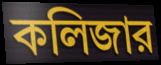
কলিজার